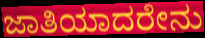
ಜಾತಿಯಾದರೇನು